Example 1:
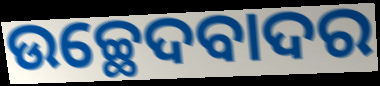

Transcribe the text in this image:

ଉଚ୍ଛେଦବାଦର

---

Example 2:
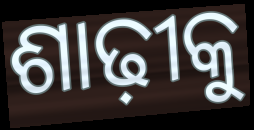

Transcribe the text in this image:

ଶାଢ଼ୀକୁ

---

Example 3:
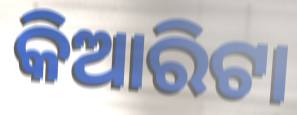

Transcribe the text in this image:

କିଆରିଟା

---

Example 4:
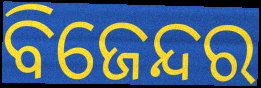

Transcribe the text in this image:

ବିଜେନ୍ଦର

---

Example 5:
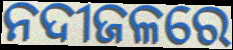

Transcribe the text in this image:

ନଦୀଜଳରେ